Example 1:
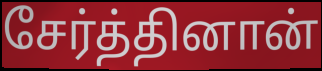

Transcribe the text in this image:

சேர்த்தினான்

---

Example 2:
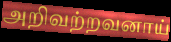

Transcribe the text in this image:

அறிவற்றவனாய்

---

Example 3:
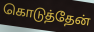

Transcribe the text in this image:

கொடுத்தேன்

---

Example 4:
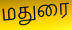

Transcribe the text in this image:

மதுரை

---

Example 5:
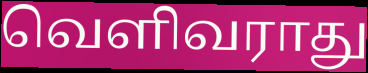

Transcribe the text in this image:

வெளிவராது